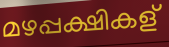
മഴപ്പക്ഷികള്